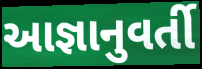
આજ્ઞાનુવર્તી